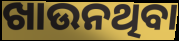
ଖାଉନଥିବା